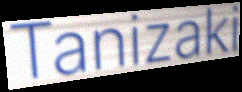
Tanizaki